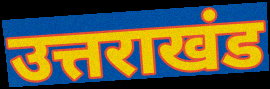
उत्तराखंड